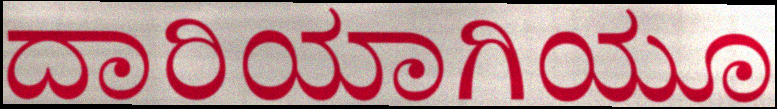
ದಾರಿಯಾಗಿಯೂ